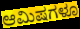
ಆಮಿಷಗಳೂ